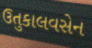
ઉતુકાલવસેન